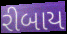
રીબાય